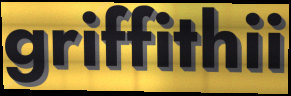
griffithii